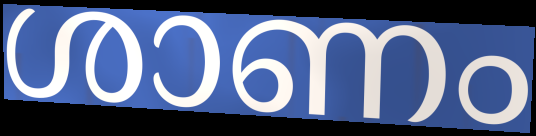
ശാണം